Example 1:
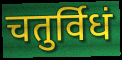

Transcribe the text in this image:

चतुर्विधं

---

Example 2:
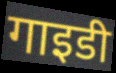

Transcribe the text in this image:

गाइडी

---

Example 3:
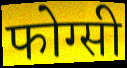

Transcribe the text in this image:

फोग्सी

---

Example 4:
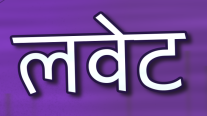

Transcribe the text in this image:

लवेट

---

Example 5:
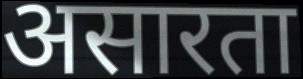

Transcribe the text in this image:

असारता